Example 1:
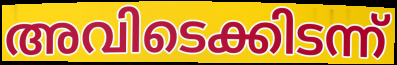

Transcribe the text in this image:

അവിടെക്കിടന്ന്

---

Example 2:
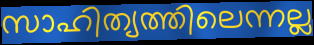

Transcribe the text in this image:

സാഹിത്യത്തിലെന്നല്ല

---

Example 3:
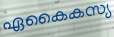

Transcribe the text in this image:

ഏകൈകസ്യ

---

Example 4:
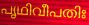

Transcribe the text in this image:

പൃഥിവീപതിഃ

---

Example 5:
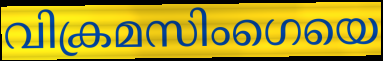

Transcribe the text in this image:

വിക്രമസിംഗെയെ